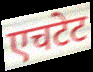
एचटेट